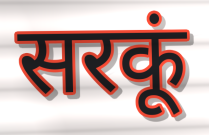
सरकूं